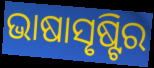
ଭାଷାସୃଷ୍ଟିର